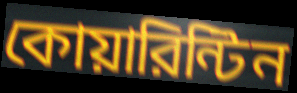
কোয়ারিন্টিন